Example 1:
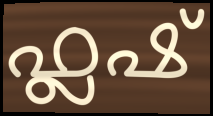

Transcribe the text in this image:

ഫ്ലഷ്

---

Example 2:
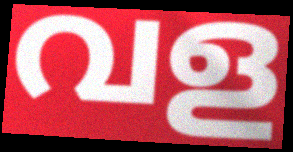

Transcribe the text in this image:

വള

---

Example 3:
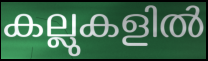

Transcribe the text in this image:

കല്ലുകളിൽ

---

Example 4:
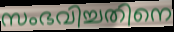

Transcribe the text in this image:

സംഭവിച്ചതിനെ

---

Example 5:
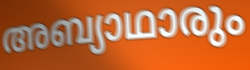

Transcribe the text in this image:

അബ്യാഥാരും